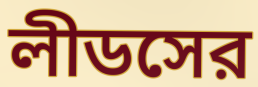
লীডসের